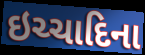
ઇચ્ચાદિના